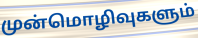
முன்மொழிவுகளும்